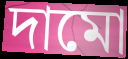
দামো